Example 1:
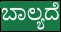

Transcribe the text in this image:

ಬಾಲ್ಯದೆ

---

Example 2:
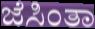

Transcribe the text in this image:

ಜೆಸಿಂತಾ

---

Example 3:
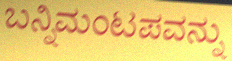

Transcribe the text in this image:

ಬನ್ನಿಮಂಟಪವನ್ನು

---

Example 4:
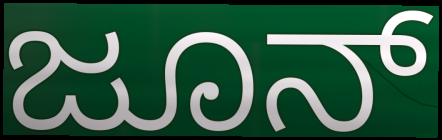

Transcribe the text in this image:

ಜೂನ್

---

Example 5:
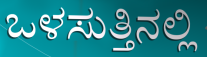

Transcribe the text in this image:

ಒಳಸುತ್ತಿನಲ್ಲಿ